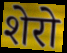
शेरो